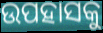
ଉପହାସକୁ